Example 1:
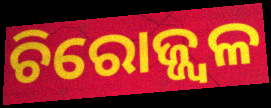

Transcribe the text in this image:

ଚିରୋଜ୍ଜ୍ଵଳ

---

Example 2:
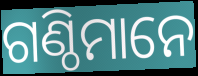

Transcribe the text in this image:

ଗଣ୍ଠିମାନେ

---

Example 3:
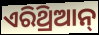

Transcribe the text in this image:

ଏରିଥ୍ରିଆନ୍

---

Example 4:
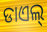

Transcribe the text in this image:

ଡାଏଲ୍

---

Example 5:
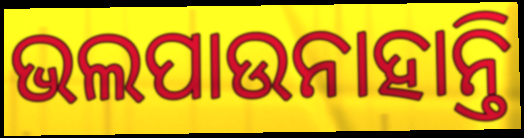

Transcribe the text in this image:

ଭଲପାଉନାହାନ୍ତି